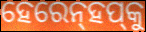
ହେରେନ୍‌ହପ୍‌କୁ